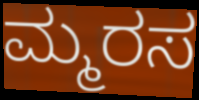
ಮ್ಮರಸ